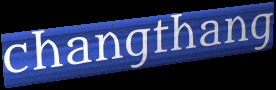
changthang